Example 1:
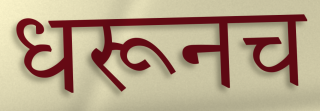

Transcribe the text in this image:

धरूनच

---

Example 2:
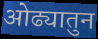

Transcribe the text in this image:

ओढ्यातुन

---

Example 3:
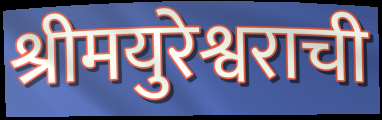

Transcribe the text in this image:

श्रीमयुरेश्वराची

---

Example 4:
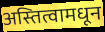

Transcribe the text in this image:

अस्तित्वामधून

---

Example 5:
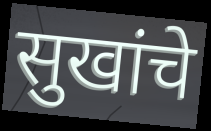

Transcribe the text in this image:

सुखांचे